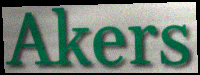
Akers